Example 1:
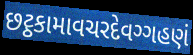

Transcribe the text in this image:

છટ્ઠકામાવચરદેવગ્ગહણં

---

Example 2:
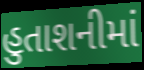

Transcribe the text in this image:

હુતાશનીમાં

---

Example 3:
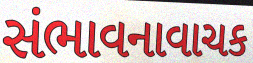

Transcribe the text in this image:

સંભાવનાવાચક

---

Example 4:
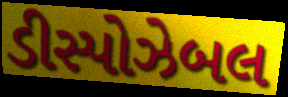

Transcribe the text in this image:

ડીસ્પોઝેબલ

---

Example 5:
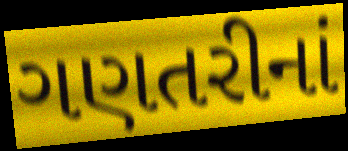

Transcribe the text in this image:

ગણતરીનાં